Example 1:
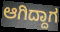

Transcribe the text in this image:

ಆಗಿದ್ದಾಗ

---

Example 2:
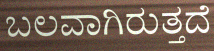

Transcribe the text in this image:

ಬಲವಾಗಿರುತ್ತದೆ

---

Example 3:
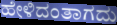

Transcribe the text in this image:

ಹೇಳಿದಂತಾಗದು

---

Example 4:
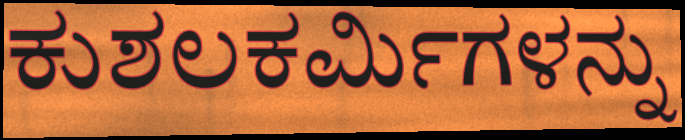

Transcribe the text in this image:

ಕುಶಲಕರ್ಮಿಗಳನ್ನು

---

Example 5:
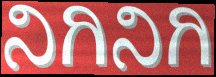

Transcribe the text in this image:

ನಿಗಿನಿಗಿ